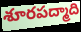
శూరపద్మాది